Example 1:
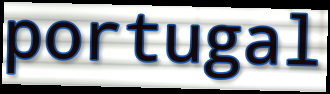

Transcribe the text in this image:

portugal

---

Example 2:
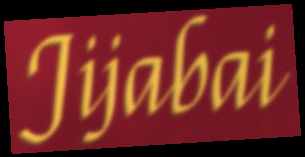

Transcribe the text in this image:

Jijabai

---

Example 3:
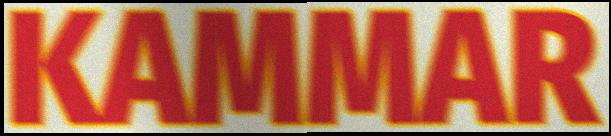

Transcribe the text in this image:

KAMMAR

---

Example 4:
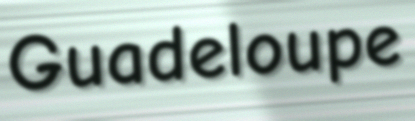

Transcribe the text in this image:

Guadeloupe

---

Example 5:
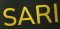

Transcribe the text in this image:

SARI